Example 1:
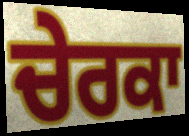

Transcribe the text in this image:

ਚੇਰਕਾ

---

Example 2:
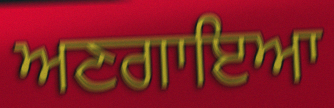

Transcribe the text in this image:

ਅਣਗਾਇਆ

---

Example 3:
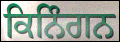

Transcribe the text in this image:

ਕਿਨਿੰਗਨ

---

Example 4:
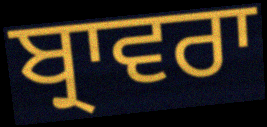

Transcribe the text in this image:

ਬ੍ਰਾਵਰਾ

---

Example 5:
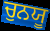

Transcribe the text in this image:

ਚੁਨਯੂ